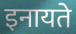
इनायते